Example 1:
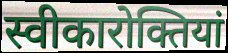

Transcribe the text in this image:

स्वीकारोक्तियां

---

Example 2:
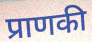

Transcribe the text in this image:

प्राणकी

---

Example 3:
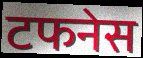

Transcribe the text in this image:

टफनेस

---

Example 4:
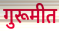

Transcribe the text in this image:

गुरूमीत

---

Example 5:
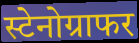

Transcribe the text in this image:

स्टेनोग्राफर